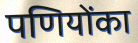
पणियोंका